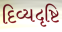
દિવ્યદૃષ્ટિ